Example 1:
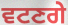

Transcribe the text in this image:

ਵਟਣਗੇ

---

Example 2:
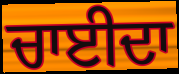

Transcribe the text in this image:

ਚਾਈਦਾ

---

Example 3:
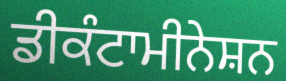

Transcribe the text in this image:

ਡੀਕੰਟਾਮੀਨੇਸ਼ਨ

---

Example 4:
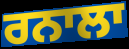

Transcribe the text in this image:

ਰਨਾਲਾ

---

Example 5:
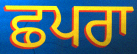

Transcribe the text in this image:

ਛਪਰਾ